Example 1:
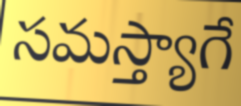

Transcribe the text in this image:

సమస్త్యాగే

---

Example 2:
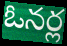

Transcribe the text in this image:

ఓనర్ల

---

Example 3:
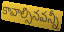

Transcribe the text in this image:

కావాల్సినవన్నీ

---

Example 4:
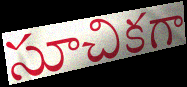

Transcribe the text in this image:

సూచికగా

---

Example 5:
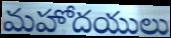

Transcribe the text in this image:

మహోదయులు